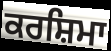
ਕਰਸ਼ਿਮਾ